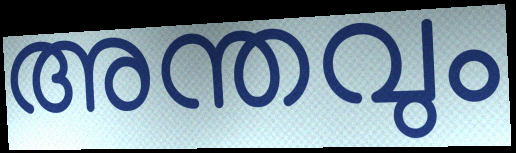
അന്തവും